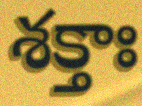
శక్తాః